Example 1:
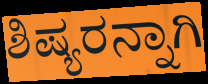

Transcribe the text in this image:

ಶಿಷ್ಯರನ್ನಾಗಿ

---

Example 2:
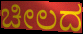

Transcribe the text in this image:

ಚೀಲದ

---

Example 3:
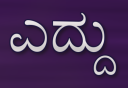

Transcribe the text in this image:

ಎದ್ದು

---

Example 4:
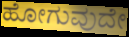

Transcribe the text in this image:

ಹೋಗುವುದೇ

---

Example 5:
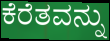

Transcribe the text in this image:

ಕೆರೆತವನ್ನು